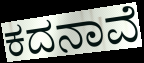
ಕದನಾವೆ